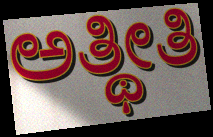
ಅತ್ಥೀತಿ